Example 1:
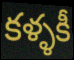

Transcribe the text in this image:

కళ్ళకీ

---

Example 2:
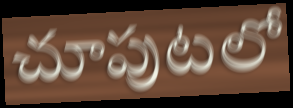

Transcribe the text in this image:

చూపుటలో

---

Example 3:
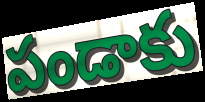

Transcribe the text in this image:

పండాకు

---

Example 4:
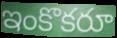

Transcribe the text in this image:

ఇంకొకరూ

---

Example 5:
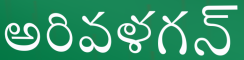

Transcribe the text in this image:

అరివళగన్